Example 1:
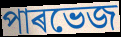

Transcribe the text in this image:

পাৰভেজ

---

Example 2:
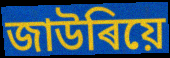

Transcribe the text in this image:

জাউৰিয়ে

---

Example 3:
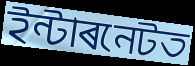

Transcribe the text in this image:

ইন্টাৰনেটত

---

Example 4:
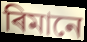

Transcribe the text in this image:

ৰিমানে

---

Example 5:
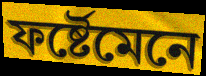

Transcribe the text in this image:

ফৰ্ষ্টেমেনে